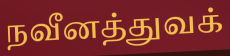
நவீனத்துவக்